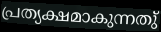
പ്രത്യക്ഷമാകുന്നതു്